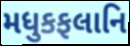
મધુકફલાનિ